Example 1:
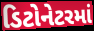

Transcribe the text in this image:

ડિટોનેટરમાં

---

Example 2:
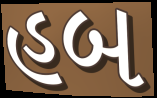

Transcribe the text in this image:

હબ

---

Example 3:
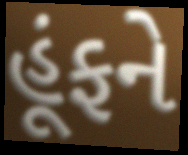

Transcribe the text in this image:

હૂંફને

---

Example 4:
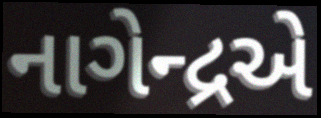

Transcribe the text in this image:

નાગેન્દ્રએ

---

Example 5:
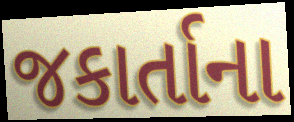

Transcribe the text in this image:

જકાર્તાના